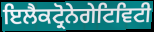
ਇਲੈਕਟ੍ਰੋਨੇਗੇਟਿਵਿਟੀ